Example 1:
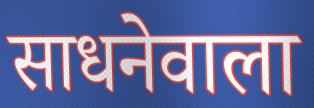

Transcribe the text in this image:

साधनेवाला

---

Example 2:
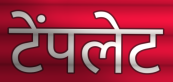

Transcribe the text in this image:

टेंपलेट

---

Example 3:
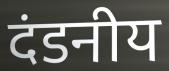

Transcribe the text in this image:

दंडनीय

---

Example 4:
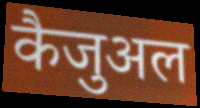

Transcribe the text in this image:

कैजुअल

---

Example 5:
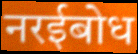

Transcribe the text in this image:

नरईबोध